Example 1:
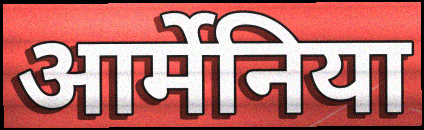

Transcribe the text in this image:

आर्मेनिया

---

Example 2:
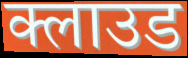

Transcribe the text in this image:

क्लाउड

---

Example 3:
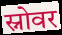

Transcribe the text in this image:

स्नोवर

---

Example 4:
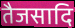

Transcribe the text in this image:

तैजसादि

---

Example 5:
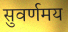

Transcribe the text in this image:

सुवर्णमय